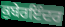
ਕੁਬੇਰਇੰਦਰ